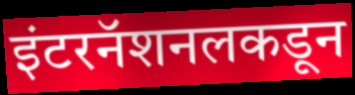
इंटरनॅशनलकडून